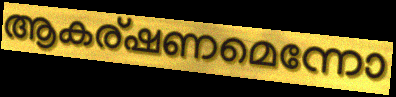
ആകര്ഷണമെന്നോ